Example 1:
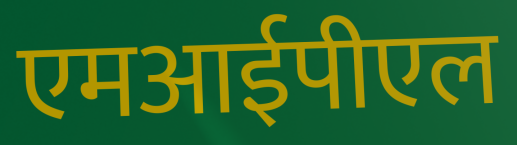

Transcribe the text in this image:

एमआईपीएल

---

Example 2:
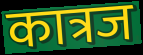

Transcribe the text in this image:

कात्रज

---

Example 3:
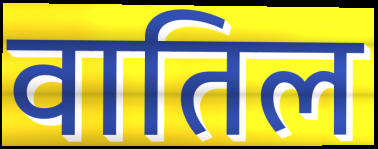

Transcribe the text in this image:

वातिल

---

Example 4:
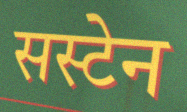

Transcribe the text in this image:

सस्टेन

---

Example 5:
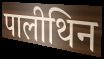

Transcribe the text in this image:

पालीथिन